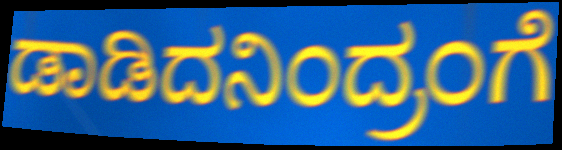
ಡಾಡಿದನಿಂದ್ರಂಗೆ